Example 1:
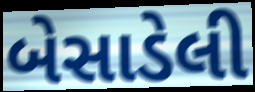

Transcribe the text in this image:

બેસાડેલી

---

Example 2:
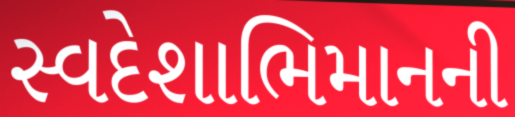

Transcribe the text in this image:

સ્વદેશાભિમાનની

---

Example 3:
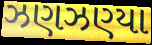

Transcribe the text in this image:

ઝણઝણ્યા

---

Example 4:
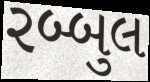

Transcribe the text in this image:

રબ્બુલ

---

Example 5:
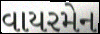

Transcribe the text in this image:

વાયરમેન